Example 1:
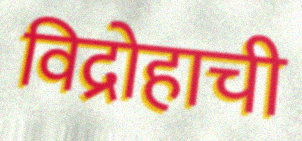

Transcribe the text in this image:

विद्रोहाची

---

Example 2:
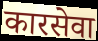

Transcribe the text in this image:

कारसेवा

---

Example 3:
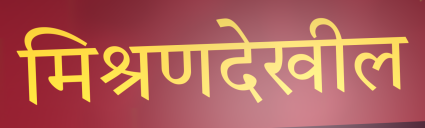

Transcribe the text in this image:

मिश्रणदेखील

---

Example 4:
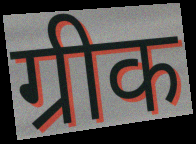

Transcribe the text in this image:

ग्रीक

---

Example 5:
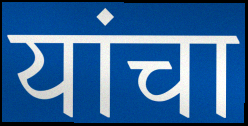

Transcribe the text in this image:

यांचा